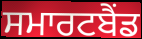
ਸਮਾਰਟਬੈਂਡ